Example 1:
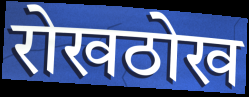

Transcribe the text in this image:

रोखठोख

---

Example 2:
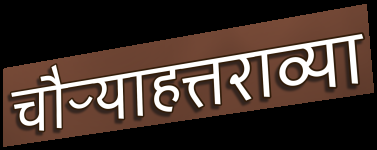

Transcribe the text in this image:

चौऱ्याहत्तराव्या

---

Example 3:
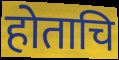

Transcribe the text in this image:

होताचि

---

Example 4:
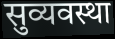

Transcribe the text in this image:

सुव्यवस्था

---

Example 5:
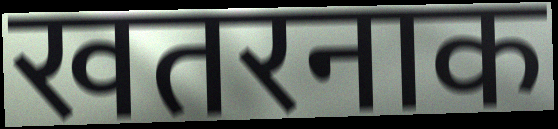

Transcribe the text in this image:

खतरनाक